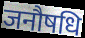
जनौषधि